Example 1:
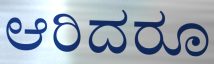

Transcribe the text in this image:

ಆರಿದರೂ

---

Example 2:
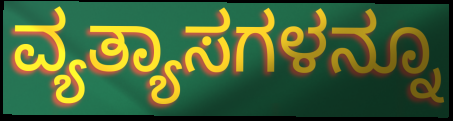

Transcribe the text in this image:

ವ್ಯತ್ಯಾಸಗಳನ್ನೂ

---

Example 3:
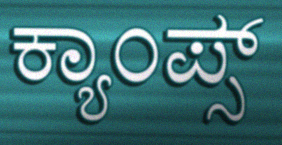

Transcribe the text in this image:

ಕ್ಯಾಂಪ್ಸ್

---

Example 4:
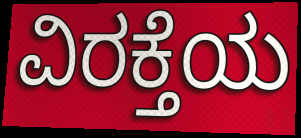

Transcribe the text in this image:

ವಿರಕ್ತೆಯ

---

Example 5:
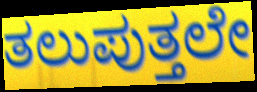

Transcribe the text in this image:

ತಲುಪುತ್ತಲೇ